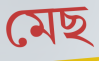
মেছ